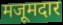
मजूमदार